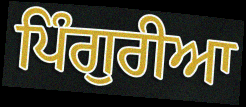
ਪਿੰਗੁਰੀਆ